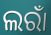
ଲରାଁ